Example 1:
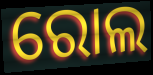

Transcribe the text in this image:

ରୋଲ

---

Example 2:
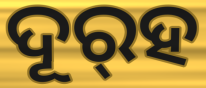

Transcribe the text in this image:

ଦୂର୍‌ହ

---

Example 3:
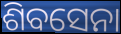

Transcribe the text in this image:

ଶିବସେନା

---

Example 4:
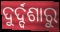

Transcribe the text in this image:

ଦୁର୍ଦ୍ଦଶାରୁ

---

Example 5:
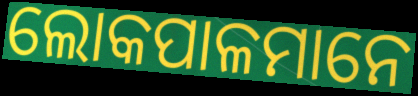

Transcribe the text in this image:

ଲୋକପାଳମାନେ